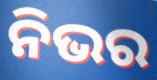
ନିଭର